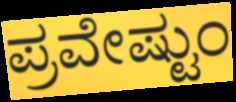
ಪ್ರವೇಷ್ಟುಂ